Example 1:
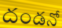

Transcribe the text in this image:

దండనో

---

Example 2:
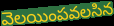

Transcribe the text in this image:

వెలయింపవలసిన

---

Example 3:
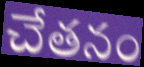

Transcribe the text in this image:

చేతనం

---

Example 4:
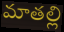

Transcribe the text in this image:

మాతల్లి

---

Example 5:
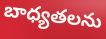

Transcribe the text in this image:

బాధ్యతలను